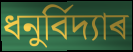
ধনুৰ্বিদ্যাৰ